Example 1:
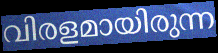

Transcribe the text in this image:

വിരളമായിരുന്ന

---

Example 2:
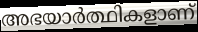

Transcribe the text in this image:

അഭയാർത്ഥികളാണ്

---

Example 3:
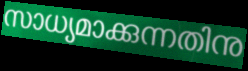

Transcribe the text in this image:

സാധ്യമാക്കുന്നതിനു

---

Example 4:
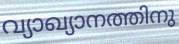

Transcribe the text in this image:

വ്യാഖ്യാനത്തിനു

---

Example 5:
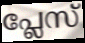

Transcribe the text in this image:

പ്ലേസ്